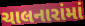
ચાલનારાંમાં